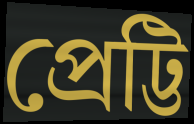
প্রেট্টি